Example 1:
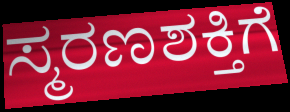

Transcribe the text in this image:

ಸ್ಮರಣಶಕ್ತಿಗೆ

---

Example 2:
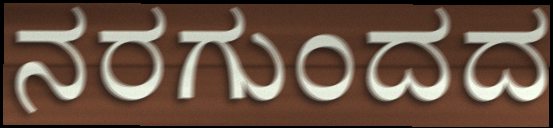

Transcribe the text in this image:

ನರಗುಂದದ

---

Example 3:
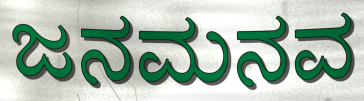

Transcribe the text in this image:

ಜನಮನವ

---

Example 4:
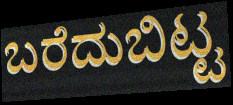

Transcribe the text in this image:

ಬರೆದುಬಿಟ್ಟ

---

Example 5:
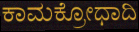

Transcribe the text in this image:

ಕಾಮಕ್ರೋಧಾದಿ